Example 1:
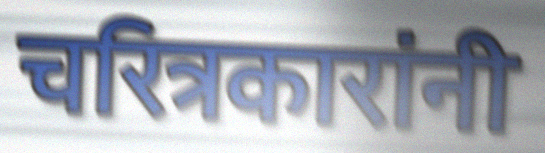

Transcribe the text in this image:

चरित्रकारांनी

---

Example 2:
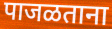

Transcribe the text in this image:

पाजळताना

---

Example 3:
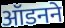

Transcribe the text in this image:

ऑडनने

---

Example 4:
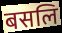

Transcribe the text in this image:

बसलि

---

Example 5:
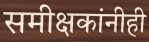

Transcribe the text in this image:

समीक्षकांनीही